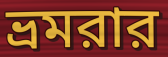
ভ্রমরার